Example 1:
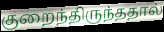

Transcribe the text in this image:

குறைந்திருந்ததால்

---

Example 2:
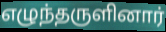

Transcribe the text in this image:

எழுந்தருளினார்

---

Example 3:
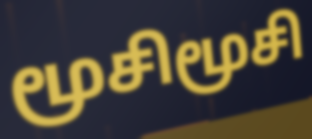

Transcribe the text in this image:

மூசிமூசி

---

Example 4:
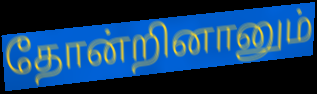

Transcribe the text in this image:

தோன்றினானும்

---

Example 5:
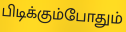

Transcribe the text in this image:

பிடிக்கும்போதும்